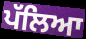
ਪੱਲਿਆ